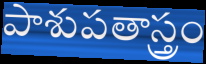
పాశుపతాస్త్రం